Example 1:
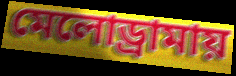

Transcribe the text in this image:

মেলোড্রামায়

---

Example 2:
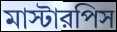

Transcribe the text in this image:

মাস্টারপিস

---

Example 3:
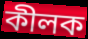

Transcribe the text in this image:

কীলক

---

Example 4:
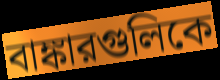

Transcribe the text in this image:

বাঙ্কারগুলিকে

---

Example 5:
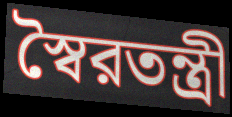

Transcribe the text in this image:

স্বৈরতন্ত্রী